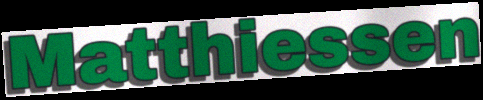
Matthiessen